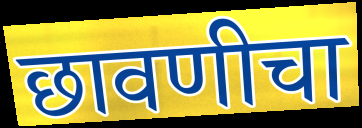
छावणीचा